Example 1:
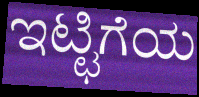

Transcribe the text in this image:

ಇಟ್ಟಿಗೆಯ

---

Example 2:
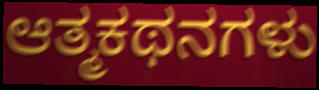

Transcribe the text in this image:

ಆತ್ಮಕಥನಗಳು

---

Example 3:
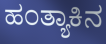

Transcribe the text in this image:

ಹಂತ್ಯಾಕಿನ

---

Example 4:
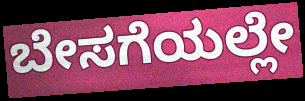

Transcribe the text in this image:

ಬೇಸಗೆಯಲ್ಲೇ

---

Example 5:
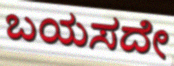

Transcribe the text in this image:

ಬಯಸದೇ